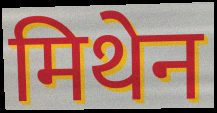
मिथेन